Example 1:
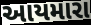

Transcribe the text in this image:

આયમારા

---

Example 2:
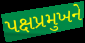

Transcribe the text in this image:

પક્ષપ્રમુખને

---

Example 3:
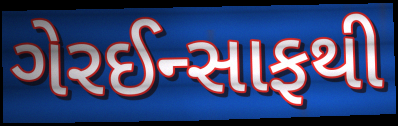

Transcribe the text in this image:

ગેરઈન્સાફથી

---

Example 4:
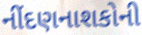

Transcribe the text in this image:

નીંદણનાશકોની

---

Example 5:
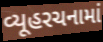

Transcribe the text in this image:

વ્યૂહરચનામાં